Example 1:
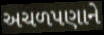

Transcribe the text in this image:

અચળપણાને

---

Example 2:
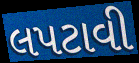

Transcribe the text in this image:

લપટાવી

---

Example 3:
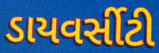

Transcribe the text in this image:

ડાયવર્સીટી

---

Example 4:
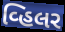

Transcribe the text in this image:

વ્હિલર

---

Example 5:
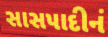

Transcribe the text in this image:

સાસપાદીનં